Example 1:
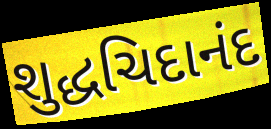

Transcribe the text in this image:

શુદ્ધચિદાનંદ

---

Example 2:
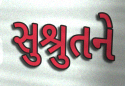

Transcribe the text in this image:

સુશ્રુતને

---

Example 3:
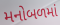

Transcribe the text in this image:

મનોબળમાં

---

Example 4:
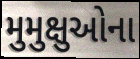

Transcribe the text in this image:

મુમુક્ષુઓના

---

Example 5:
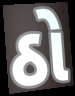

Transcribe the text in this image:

ઠો